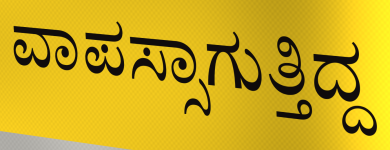
ವಾಪಸ್ಸಾಗುತ್ತಿದ್ದ